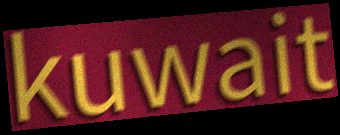
kuwait